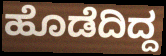
ಹೊಡೆದಿದ್ದ